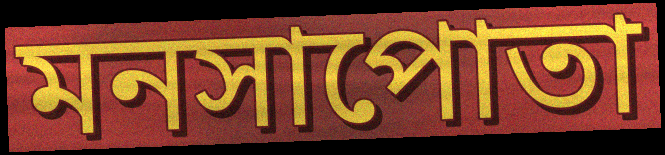
মনসাপোতা